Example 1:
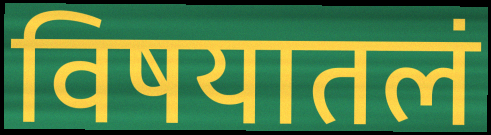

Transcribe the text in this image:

विषयातलं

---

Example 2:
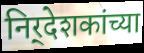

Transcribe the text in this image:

निर्देशकांच्या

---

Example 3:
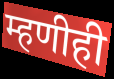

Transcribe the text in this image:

म्हणीही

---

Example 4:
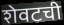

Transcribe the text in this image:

शेवटची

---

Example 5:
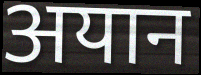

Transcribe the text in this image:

अयान